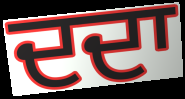
ਦਦਾ